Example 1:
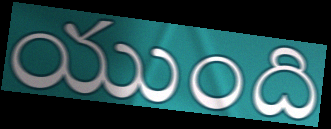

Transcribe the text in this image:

యుంది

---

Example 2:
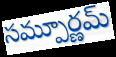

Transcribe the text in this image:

సమ్పూర్ణమ్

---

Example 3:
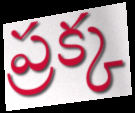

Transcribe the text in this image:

ప్రక్క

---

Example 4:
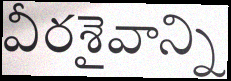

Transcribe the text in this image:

వీరశైవాన్ని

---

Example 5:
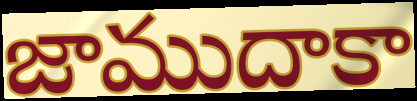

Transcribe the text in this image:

జాముదాకా